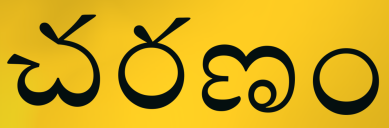
చరణం